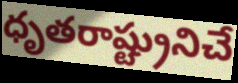
ధృతరాష్ట్రునిచే